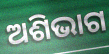
ଅଶିଭାଗ